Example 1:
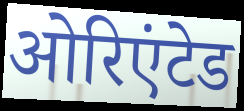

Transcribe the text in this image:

ओरिएंटेड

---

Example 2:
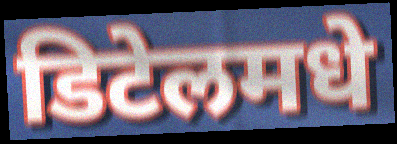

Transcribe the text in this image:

डिटेलमधे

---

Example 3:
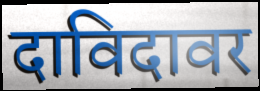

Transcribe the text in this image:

दाविदावर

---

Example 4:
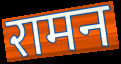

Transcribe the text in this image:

रामन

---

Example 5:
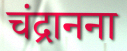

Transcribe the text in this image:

चंद्रानना